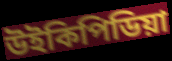
উইকিপিডিয়া